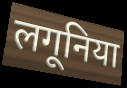
लगूनिया